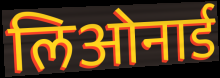
लिओनार्ड